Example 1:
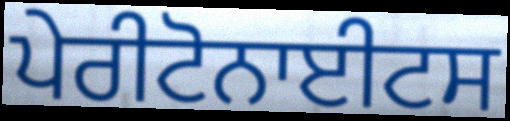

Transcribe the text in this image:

ਪੇਰੀਟੋਨਾਈਟਸ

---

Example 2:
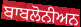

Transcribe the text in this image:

ਬਾਬਲੋਨੀਅਨ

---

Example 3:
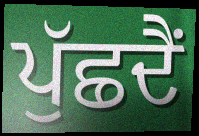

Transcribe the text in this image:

ਪੁੱਛਦੈਂ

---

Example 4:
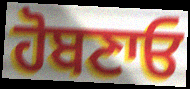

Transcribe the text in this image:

ਹੋਬਣਾਓ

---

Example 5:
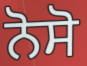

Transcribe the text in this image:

ਨੋਸੋ